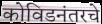
कोविडनंतरचे